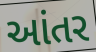
આંતર